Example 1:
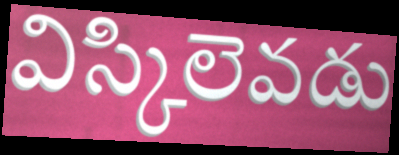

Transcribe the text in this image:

విస్కిలెవడు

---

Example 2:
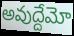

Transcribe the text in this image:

అవుద్దేమో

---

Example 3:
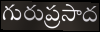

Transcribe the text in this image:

గురుప్రసాద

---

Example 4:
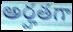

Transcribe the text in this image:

అర్హతగా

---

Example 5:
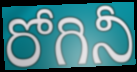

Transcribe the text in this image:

రోగినీ